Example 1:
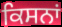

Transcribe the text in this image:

ਕਿਸਨਾਂ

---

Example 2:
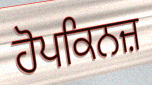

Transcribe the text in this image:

ਹੋਪਕਿਨਜ਼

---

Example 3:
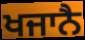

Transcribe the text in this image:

ਖਜਾਨੈ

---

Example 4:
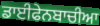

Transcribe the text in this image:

ਡਾਈਫੇਨਬਾਚੀਆ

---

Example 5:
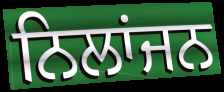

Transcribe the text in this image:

ਨਿਲਾਂਜਨ